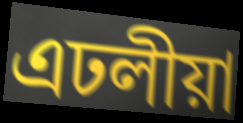
এঢলীয়া